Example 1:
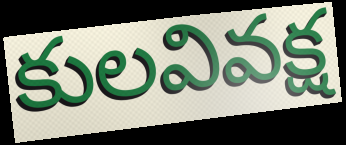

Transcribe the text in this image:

కులవివక్ష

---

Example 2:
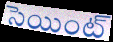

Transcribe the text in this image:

సెయింట్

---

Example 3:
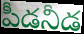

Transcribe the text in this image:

పీడనీడ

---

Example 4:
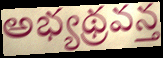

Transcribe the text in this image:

అభ్యథ్రవన్త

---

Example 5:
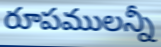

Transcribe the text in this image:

రూపములన్నీ